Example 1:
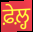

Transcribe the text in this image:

ਫ਼ੇਲ਼੍ਹ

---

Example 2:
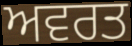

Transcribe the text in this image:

ਅਵਰਤ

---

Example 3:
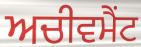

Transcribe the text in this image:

ਅਚੀਵਮੈਂਟ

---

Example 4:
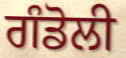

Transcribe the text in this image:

ਗੰਡੋਲੀ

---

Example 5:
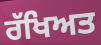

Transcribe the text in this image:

ਰੱਖਿਅਤ